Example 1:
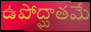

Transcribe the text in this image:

ఉపోద్ఘాతమే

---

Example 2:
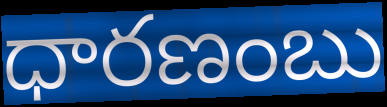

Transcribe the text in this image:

ధారణంబు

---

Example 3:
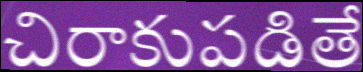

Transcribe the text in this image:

చిరాకుపడితే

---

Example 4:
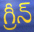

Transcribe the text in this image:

గ్రీన్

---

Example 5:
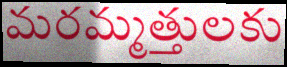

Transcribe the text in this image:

మరమ్మత్తులకు